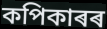
কপিকাৰৰ